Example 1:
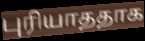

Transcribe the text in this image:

புரியாததாக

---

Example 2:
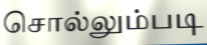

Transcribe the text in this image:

சொல்லும்படி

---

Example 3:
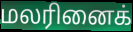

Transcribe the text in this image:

மலரினைக்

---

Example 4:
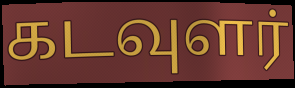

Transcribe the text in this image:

கடவுளர்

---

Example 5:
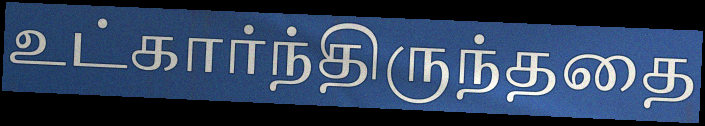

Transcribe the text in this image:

உட்கார்ந்திருந்ததை